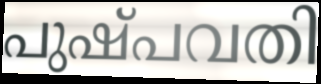
പുഷ്പവതി